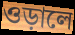
ওড়ালে